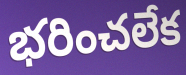
భరించలేక